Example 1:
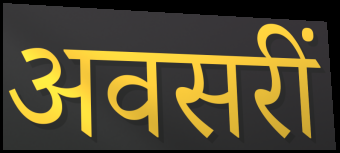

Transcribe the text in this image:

अवसरीं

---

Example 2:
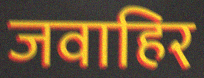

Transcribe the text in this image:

जवाहिर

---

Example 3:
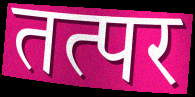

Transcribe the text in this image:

तत्पर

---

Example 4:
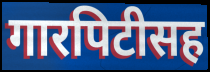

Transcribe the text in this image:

गारपिटीसह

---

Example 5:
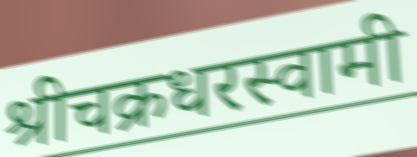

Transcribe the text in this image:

श्रीचक्रधरस्वामी